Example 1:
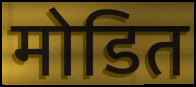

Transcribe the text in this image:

मोडित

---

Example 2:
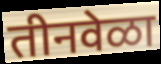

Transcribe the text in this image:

तीनवेळा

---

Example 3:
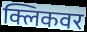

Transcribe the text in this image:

क्लिकवर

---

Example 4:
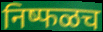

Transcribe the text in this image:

निष्फळच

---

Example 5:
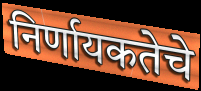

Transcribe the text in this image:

निर्णायकतेचे